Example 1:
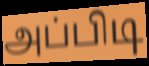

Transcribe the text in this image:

அப்பிடி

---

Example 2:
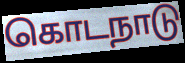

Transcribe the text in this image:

கொடநாடு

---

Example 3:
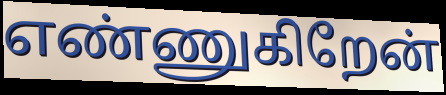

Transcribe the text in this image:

எண்ணுகிறேன்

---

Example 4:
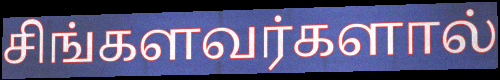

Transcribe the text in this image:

சிங்களவர்களால்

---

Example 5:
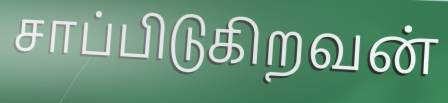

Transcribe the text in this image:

சாப்பிடுகிறவன்